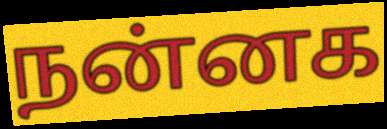
நன்னக